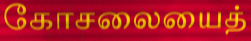
கோசலையைத்